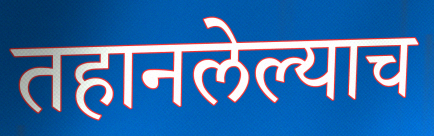
तहानलेल्याच